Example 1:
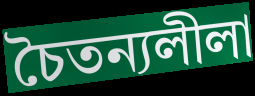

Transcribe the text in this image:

চৈতন্যলীলা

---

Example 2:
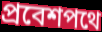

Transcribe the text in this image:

প্রবেশপথে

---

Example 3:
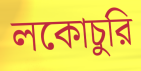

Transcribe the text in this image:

লকোচুরি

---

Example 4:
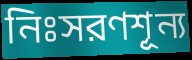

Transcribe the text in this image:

নিঃসরণশূন্য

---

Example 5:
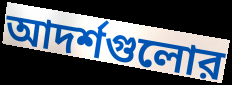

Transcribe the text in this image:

আদর্শগুলোর